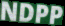
NDPP